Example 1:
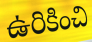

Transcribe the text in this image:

ఉరికించి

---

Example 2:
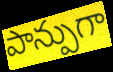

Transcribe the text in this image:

పాన్పుగా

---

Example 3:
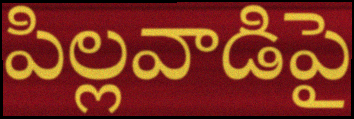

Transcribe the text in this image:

పిల్లవాడిపై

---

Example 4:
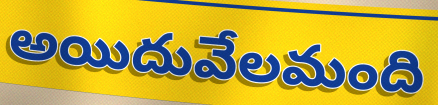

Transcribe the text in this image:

అయిదువేలమంది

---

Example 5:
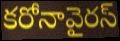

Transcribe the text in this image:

కరోనావైరస్